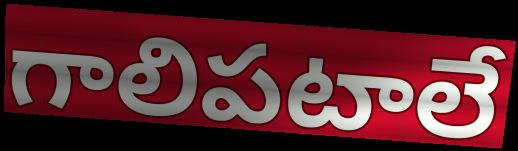
గాలిపటాలే